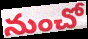
నుంచో